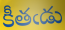
కీతఁడు